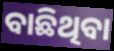
ବାଛିଥିବା